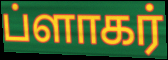
ப்ளாகர்